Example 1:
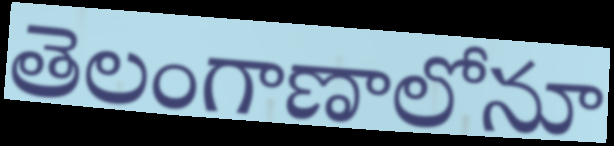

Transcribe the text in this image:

తెలంగాణాలోనూ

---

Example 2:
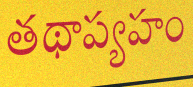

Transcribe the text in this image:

తథాప్యహం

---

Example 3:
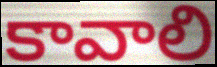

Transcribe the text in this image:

కావాలి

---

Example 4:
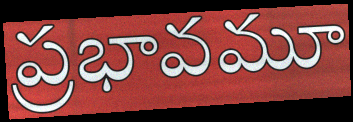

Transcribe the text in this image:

ప్రభావమూ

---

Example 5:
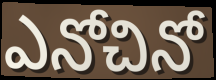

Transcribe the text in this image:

ఎనోచినో